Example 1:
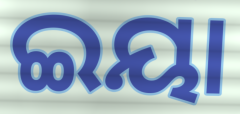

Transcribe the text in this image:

ଇୟା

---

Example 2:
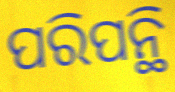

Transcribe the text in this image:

ପରିପନ୍ଥି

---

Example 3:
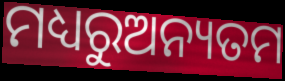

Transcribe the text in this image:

ମଧ୍ୟରୁଅନ୍ୟତମ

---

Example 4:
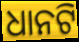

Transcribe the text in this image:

ଧାନଟି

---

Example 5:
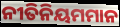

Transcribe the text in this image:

ନୀତିନିୟମମାନ